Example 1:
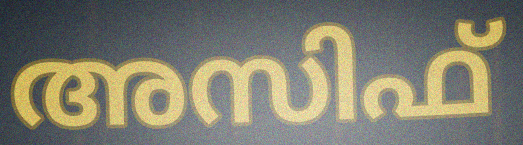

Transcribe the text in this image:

അസിഫ്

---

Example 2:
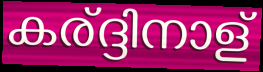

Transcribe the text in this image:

കര്ദ്ദിനാള്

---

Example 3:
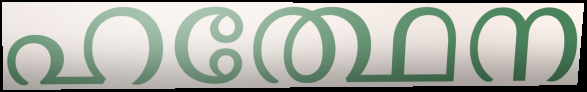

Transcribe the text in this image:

ഹത്ഥേന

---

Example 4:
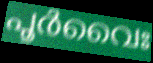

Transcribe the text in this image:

പൂർവൈഃ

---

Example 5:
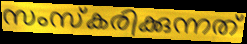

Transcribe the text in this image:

സംസ്കരിക്കുന്നത്